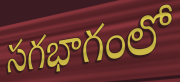
సగభాగంలో